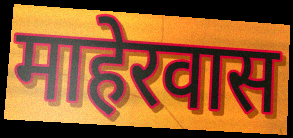
माहेरवास